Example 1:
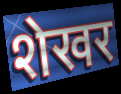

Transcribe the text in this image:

शेखर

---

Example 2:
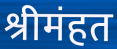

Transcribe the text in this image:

श्रीमंहत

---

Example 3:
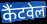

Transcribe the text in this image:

कैंटवेल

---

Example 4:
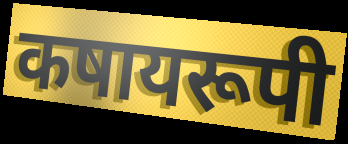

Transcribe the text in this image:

कषायरूपी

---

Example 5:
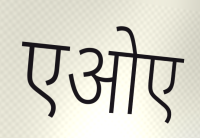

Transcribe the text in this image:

एओए